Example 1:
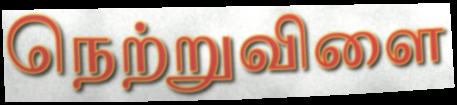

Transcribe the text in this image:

நெற்றுவிளை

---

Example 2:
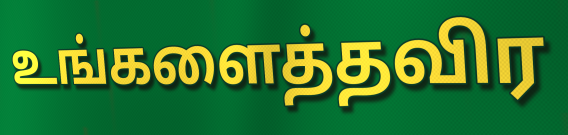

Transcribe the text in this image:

உங்களைத்தவிர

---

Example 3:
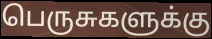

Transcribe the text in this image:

பெருசுகளுக்கு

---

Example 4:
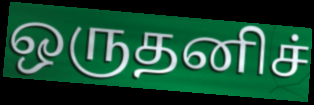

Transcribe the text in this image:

ஒருதனிச்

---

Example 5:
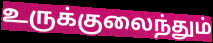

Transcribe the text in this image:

உருக்குலைந்தும்